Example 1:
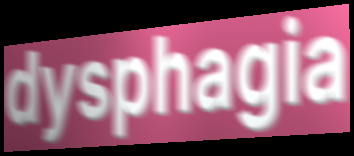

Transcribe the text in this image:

dysphagia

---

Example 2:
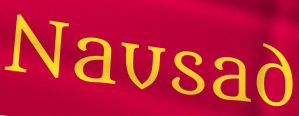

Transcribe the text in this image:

Nausad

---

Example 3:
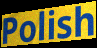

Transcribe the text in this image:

Polish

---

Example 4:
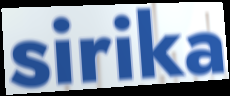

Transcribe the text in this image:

sirika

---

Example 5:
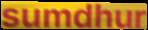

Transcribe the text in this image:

sumdhur